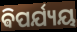
ଵିପର୍ଯ୍ୟୟ